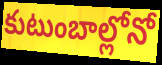
కుటుంబాల్లోనో